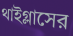
থাইগ্লাসের